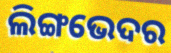
ଲିଙ୍ଗଭେଦର